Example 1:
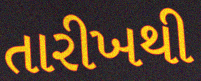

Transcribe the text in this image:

તારીખથી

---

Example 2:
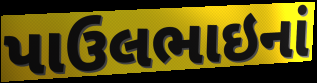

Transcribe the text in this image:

પાઉલભાઇનાં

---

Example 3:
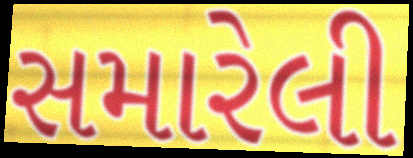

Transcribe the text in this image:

સમારેલી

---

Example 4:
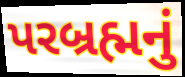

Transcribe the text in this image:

પરબ્રહ્મનું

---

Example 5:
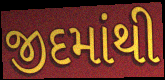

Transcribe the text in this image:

જીદમાંથી